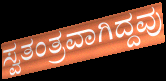
ಸ್ವತಂತ್ರವಾಗಿದ್ದವು